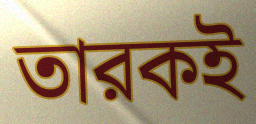
তারকই